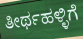
ತೀರ್ಥಹಳ್ಳಿಗೆ